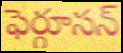
ఫెర్గూసన్